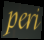
peri